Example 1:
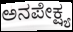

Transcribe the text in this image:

ಅನಪೇಕ್ಷ್ಯ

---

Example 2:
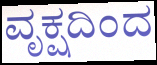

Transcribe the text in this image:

ವೃಕ್ಷದಿಂದ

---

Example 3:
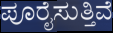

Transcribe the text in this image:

ಪೂರೈಸುತ್ತಿವೆ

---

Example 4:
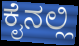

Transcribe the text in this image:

ಕೈನಲ್ಲಿ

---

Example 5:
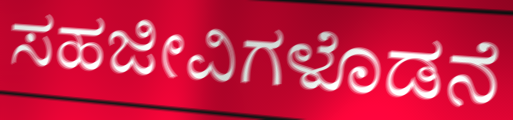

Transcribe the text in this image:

ಸಹಜೀವಿಗಳೊಡನೆ